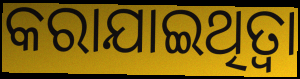
କରାଯାଇଥିତ୍ବା